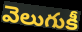
వెలుగుకీ